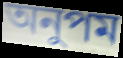
অনুপম